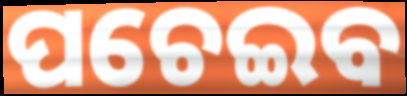
ପଚେଇବ